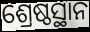
ଶ୍ରେଷ୍ଠସ୍ଥାନ